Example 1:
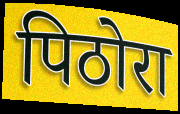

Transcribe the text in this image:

पिठोरा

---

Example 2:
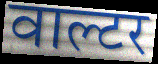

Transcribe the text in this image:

वाल्टर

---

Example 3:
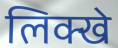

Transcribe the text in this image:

लिक्खे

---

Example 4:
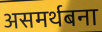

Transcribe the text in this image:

असमर्थबना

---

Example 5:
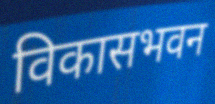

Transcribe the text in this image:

विकासभवन